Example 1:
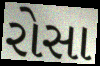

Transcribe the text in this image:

રોસા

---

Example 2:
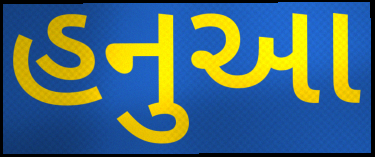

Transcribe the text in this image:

હનુઆ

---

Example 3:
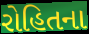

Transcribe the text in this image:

રોહિતના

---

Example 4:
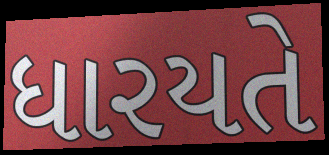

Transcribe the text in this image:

ધારયતે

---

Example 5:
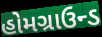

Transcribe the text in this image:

હોમગ્રાઉન્ડ